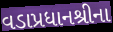
વડાપ્રધાનશ્રીના